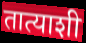
तात्याशी